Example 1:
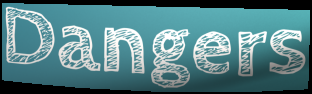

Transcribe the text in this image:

Dangers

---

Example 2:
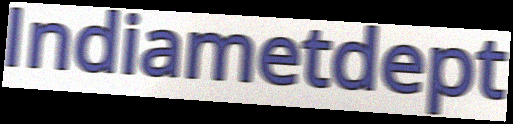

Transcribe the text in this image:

Indiametdept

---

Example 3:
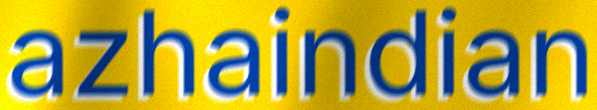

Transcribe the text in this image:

azhaindian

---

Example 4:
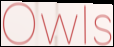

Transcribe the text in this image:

Owls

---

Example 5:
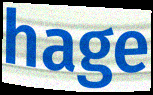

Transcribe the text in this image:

hage